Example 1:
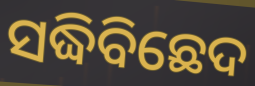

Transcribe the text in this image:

ସଦ୍ଧିବିଛେଦ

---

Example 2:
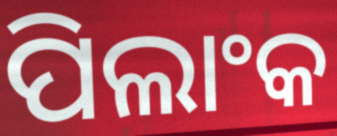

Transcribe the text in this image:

ପିଲାଂକ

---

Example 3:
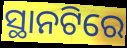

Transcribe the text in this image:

ସ୍ଥାନଟିରେ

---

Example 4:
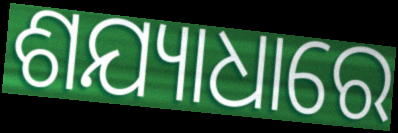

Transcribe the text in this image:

ଶଯ୍ୟାଧାରେ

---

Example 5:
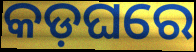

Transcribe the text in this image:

କଡ଼ଘରେ